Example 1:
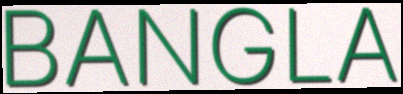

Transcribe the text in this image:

BANGLA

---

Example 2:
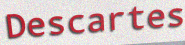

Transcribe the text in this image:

Descartes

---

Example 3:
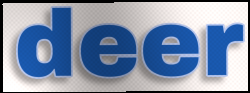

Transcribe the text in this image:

deer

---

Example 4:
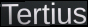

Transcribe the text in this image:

Tertius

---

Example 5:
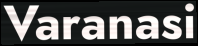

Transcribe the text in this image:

Varanasi